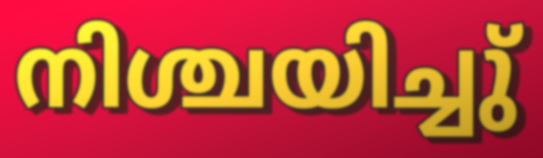
നിശ്ചയിച്ചു്